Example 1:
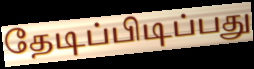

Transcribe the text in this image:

தேடிப்பிடிப்பது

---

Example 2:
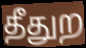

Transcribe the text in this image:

தீதுற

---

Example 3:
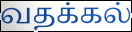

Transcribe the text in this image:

வதக்கல்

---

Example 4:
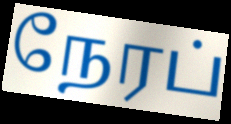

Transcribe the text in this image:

நேரப்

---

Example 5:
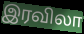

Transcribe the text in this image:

இரவிலா